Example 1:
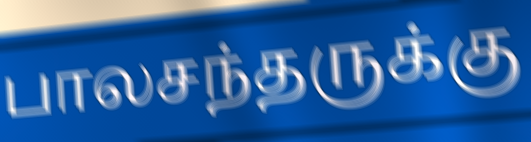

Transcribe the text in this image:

பாலசந்தருக்கு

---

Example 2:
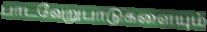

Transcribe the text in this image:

பாடவேறுபாடுகளையும்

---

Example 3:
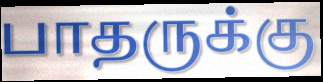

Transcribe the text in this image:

பாதருக்கு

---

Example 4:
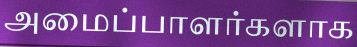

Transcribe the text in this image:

அமைப்பாளர்களாக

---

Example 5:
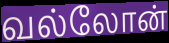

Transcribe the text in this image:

வல்லோன்